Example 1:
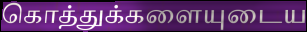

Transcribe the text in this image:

கொத்துக்களையுடைய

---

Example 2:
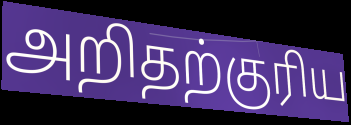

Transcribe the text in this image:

அறிதற்குரிய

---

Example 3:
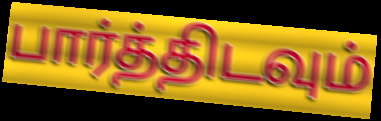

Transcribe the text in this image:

பார்த்திடவும்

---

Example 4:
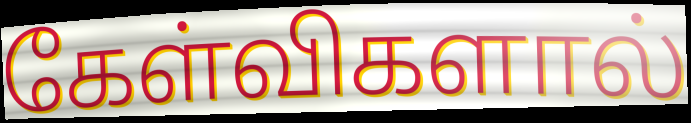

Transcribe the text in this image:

கேள்விகளால்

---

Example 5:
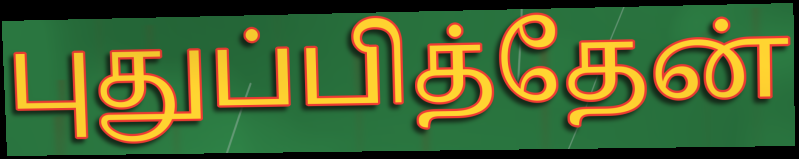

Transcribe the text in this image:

புதுப்பித்தேன்